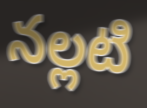
నల్లటి